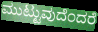
ಮುಟ್ಟುವುದೆಂದರೆ